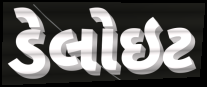
ડેલોઇટ